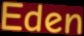
Eden